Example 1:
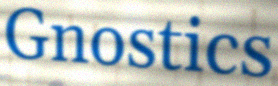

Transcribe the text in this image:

Gnostics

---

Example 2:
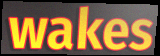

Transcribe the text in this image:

wakes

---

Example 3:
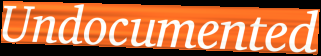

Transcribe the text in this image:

Undocumented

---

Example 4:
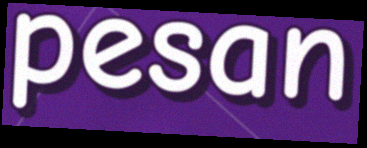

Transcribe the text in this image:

pesan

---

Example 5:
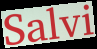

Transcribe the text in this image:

Salvi